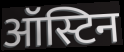
ऑस्टिन